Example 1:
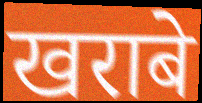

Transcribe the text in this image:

खराबे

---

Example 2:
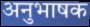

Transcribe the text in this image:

अनुभाषक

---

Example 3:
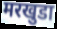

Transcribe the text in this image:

मरखुडा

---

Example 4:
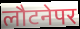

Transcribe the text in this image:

लौटनेपर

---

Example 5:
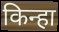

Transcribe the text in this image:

किन्हा